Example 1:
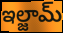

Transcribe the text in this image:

ఇల్జామ్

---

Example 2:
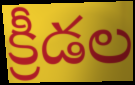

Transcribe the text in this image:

క్రీడల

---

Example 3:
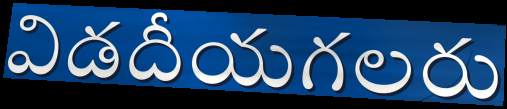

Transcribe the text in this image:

విడదీయగలరు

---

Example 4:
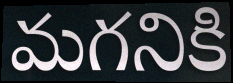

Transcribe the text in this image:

మగనికి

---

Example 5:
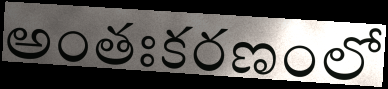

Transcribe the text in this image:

అంతఃకరణంలో